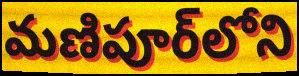
మణిపూర్‌లోని